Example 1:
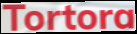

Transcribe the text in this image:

Tortora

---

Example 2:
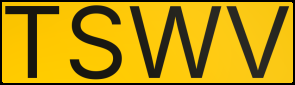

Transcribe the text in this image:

TSWV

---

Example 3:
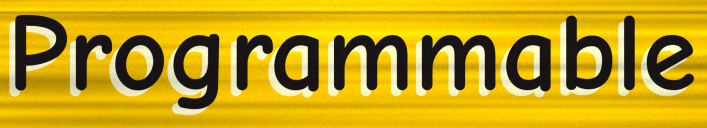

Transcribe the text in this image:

Programmable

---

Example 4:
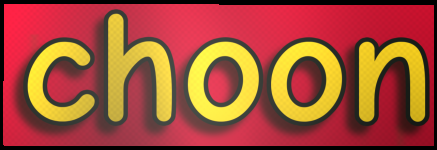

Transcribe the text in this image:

choon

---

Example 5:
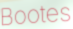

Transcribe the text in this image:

Bootes